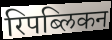
रिपब्लिकन